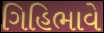
ગિહિભાવે